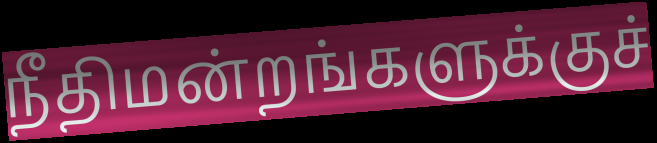
நீதிமன்றங்களுக்குச்